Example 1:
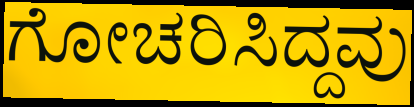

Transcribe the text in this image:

ಗೋಚರಿಸಿದ್ದವು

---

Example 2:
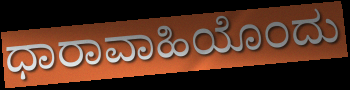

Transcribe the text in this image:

ಧಾರಾವಾಹಿಯೊಂದು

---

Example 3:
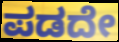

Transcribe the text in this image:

ಪಡದೇ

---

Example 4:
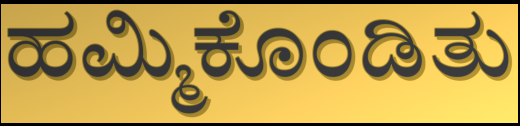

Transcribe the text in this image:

ಹಮ್ಮಿಕೊಂಡಿತು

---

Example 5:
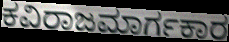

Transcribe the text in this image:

ಕವಿರಾಜಮಾರ್ಗಕಾರ